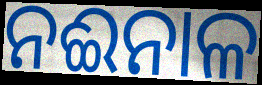
ନଈନାଳ